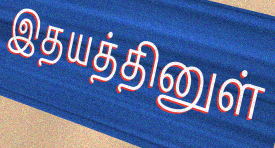
இதயத்தினுள்